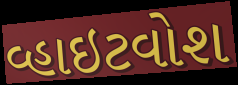
વ્હાઇટવોશ